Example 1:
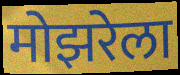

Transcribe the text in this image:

मोझरेला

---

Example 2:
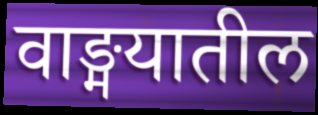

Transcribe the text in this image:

वाङ्मयातील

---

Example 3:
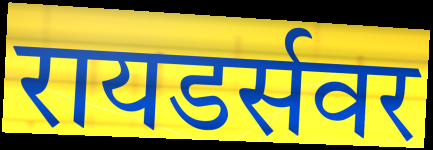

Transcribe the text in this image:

रायडर्सवर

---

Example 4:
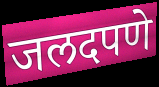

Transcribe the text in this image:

जलदपणे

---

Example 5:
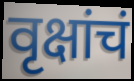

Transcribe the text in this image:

वृक्षांचं